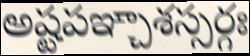
అష్టపఞ్చాశస్సర్గః